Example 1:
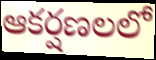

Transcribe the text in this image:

ఆకర్షణలలో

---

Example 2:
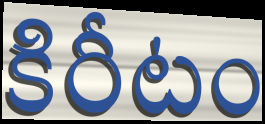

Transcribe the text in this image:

కిరీటం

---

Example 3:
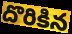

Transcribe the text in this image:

దొరికిన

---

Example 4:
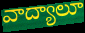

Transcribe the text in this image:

వాద్యాలూ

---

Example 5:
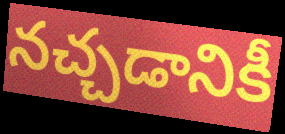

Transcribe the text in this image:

నచ్చడానికీ